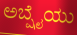
ಅಬ್ಷೈಯು